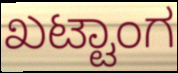
ಖಟ್ಟಾಂಗ